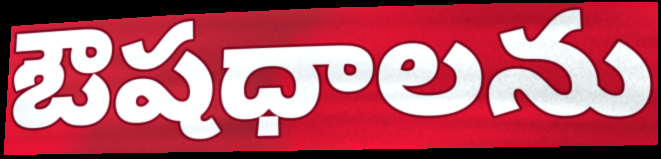
ఔషధాలను